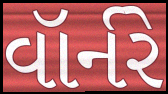
વૉર્નરે